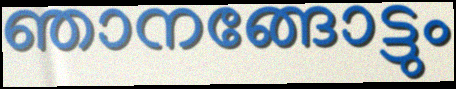
ഞാനങ്ങോട്ടും